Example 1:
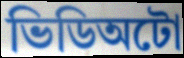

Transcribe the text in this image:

ভিডিঅটো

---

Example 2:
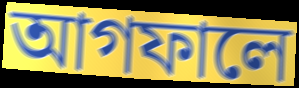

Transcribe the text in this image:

আগফালে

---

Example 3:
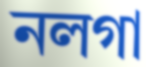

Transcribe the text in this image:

নলগা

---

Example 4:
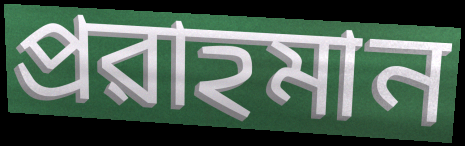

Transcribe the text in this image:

প্ৰৱাহমান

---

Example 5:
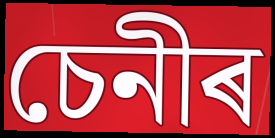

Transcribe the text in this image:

চেনীৰ